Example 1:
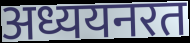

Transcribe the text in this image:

अध्ययनरत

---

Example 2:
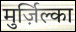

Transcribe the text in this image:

मुर्ज़िल्का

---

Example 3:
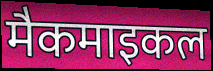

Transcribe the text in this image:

मैकमाइकल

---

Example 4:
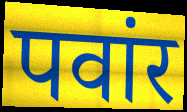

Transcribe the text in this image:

पवांर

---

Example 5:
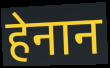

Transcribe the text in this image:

हेनान